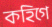
কহিগে